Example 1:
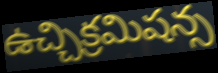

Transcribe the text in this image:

ఉచ్చిక్రమిషన్స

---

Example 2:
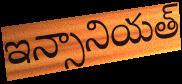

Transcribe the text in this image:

ఇన్సానియత్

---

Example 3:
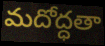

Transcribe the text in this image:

మదోద్ధతా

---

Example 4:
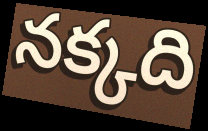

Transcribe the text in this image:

నక్కది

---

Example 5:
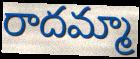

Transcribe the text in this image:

రాదమ్మా